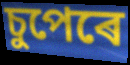
চুপেৰে